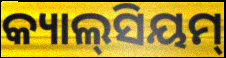
କ୍ୟାଲ୍‌ସିୟମ୍